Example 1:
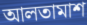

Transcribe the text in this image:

আলতামাশ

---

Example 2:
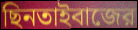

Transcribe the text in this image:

ছিনতাইবাজের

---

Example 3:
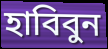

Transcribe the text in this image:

হাবিবুন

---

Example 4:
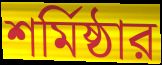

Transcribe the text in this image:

শর্মিষ্ঠার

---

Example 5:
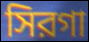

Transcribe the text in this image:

সিরগা